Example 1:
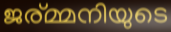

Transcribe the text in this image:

ജര്മ്മനിയുടെ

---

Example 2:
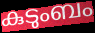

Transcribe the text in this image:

കുടുംബം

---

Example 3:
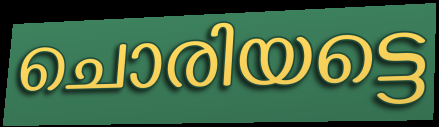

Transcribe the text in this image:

ചൊരിയട്ടെ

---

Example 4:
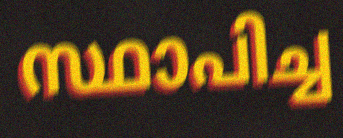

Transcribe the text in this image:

സ്ഥാപിച്ച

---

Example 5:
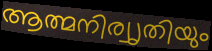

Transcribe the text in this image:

ആത്മനിര്വൃതിയും